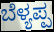
ಬೆಳ್ಯಪ್ಪ